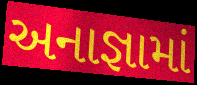
અનાજ્ઞામાં